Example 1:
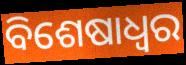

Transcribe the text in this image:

ବିଶେଷାଧ୍ଵର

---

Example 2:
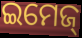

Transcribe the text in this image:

ଇମେଜ୍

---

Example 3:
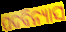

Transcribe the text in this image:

ପଦବିନ୍ୟାସ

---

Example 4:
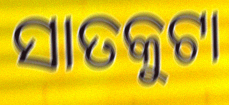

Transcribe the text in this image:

ସାତକୁଟା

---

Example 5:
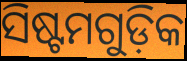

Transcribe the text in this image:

ସିଷ୍ଟମଗୁଡ଼ିକ